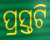
ପ୍ରସ୍ତଟି